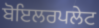
ਬੋਇਲਰਪਲੇਟ